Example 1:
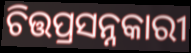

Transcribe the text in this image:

ଚିତ୍ତପ୍ରସନ୍ନକାରୀ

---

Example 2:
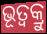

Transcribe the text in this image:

ଭୂତ୍ଵକ୍ରୁ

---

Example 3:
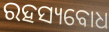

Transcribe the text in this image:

ରହସ୍ୟବୋଧ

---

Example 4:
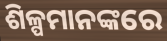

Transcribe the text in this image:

ଶିଳ୍ପମାନଙ୍କରେ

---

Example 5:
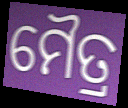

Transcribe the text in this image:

ମୈତ୍ର